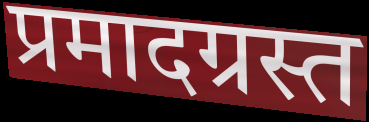
प्रमादग्रस्त